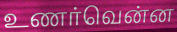
உணர்வென்ன